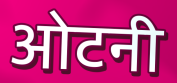
ओटनी